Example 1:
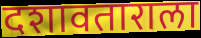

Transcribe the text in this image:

दशावताराला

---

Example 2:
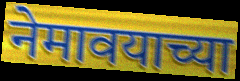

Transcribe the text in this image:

नेमावयाच्या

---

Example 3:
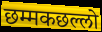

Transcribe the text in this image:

छम्मकछल्लो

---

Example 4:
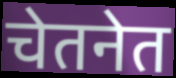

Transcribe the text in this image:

चेतनेत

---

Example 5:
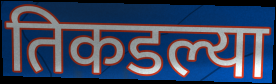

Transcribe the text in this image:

तिकडल्या